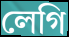
লেগি